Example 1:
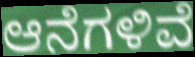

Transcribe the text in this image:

ಆನೆಗಳಿವೆ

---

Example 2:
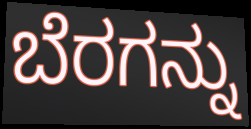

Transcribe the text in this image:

ಬೆರಗನ್ನು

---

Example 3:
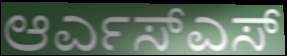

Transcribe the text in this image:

ಆರ್ಎಸ್ಎಸ್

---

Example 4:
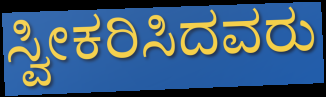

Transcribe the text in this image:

ಸ್ವೀಕರಿಸಿದವರು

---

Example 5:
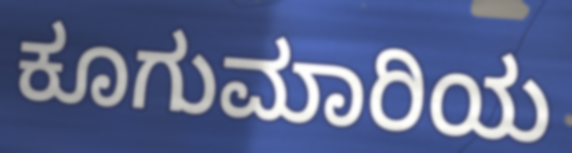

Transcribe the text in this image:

ಕೂಗುಮಾರಿಯ